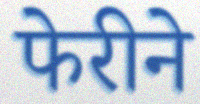
फेरीने